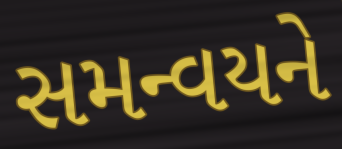
સમન્વયને